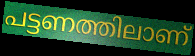
പട്ടണത്തിലാണ്